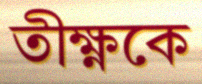
তীক্ষ্ণকে